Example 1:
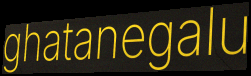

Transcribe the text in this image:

ghatanegalu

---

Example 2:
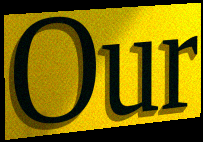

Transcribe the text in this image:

Our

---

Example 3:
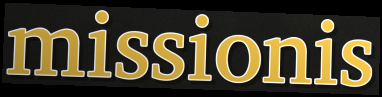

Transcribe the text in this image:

missionis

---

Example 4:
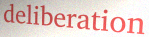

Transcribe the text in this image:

deliberation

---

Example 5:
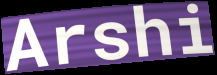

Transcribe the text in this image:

Arshi